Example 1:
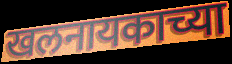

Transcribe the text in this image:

खलनायकाच्या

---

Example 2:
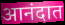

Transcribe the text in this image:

आनंदात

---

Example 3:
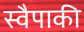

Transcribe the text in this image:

स्वैपाकी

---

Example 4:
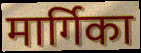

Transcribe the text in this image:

मार्गिका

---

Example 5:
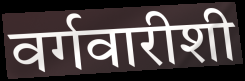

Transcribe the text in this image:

वर्गवारीशी